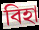
বিহা